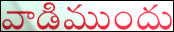
వాడిముందు